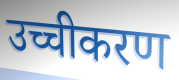
उच्चीकरण